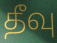
தீவு